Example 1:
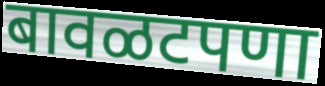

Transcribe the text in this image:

बावळटपणा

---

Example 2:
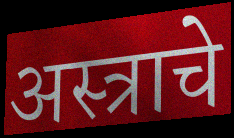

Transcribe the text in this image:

अस्त्राचे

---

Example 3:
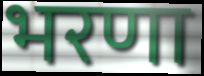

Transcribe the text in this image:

भरणा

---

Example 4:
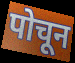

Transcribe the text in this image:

पोचून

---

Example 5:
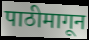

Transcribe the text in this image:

पाठीमागून